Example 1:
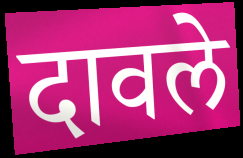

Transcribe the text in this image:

दावले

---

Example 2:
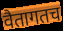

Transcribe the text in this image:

वैतागतच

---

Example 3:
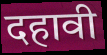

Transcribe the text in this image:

दहावी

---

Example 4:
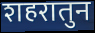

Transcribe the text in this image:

शहरातुन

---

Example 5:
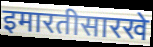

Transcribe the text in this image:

इमारतीसारखे